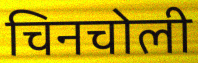
चिनचोली